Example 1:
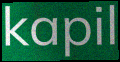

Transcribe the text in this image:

kapil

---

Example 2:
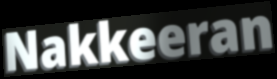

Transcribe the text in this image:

Nakkeeran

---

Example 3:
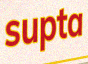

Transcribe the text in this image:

supta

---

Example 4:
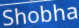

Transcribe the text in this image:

Shobha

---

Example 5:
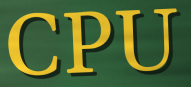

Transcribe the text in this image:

CPU